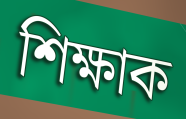
শিক্ষাক